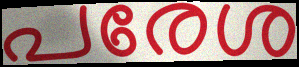
പരേശ